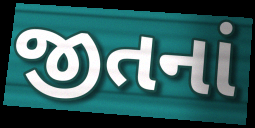
જીતનાં